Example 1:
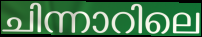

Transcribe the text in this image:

ചിന്നാറിലെ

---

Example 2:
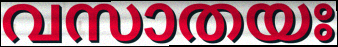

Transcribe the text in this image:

വസാതയഃ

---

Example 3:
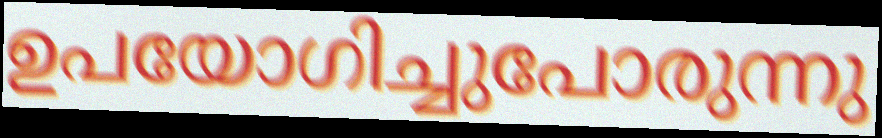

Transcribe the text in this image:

ഉപയോഗിച്ചുപോരുന്നു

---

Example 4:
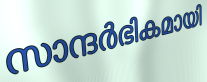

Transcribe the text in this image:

സാന്ദർഭികമായി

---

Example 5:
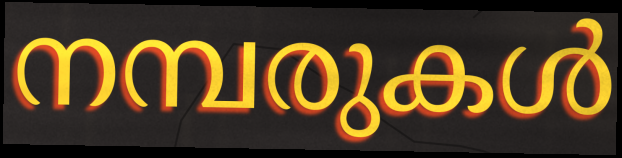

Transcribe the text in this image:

നമ്പരുകൾ